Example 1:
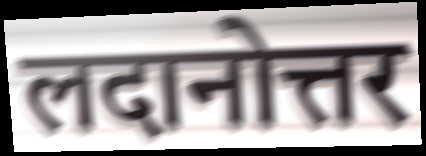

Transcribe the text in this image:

लदानोत्तर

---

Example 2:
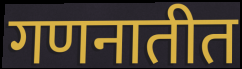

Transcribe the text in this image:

गणनातीत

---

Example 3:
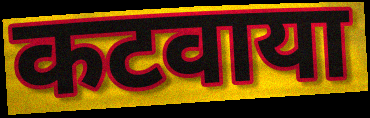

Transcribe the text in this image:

कटवाया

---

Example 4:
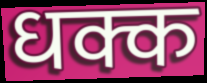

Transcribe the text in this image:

धक्क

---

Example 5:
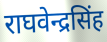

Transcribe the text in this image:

राघवेन्द्रसिंह